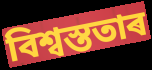
বিশ্বস্ততাৰ